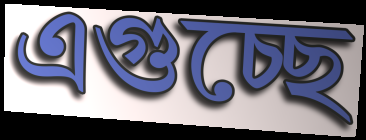
এগুচ্ছে